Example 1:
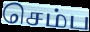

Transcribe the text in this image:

செம்ப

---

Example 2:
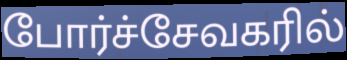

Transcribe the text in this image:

போர்ச்சேவகரில்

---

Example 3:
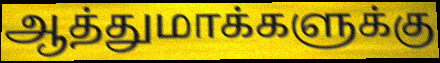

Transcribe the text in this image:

ஆத்துமாக்களுக்கு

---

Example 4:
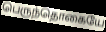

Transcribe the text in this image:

பெருந்தொகையே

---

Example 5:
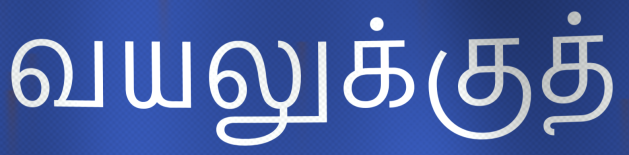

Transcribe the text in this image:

வயலுக்குத்